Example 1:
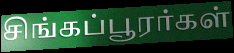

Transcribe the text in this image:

சிங்கப்பூரர்கள்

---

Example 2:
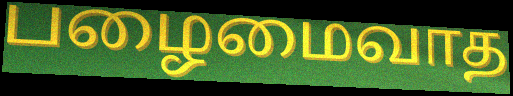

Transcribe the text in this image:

பழைமைவாத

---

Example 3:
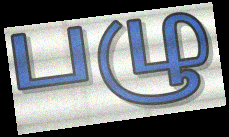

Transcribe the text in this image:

பழு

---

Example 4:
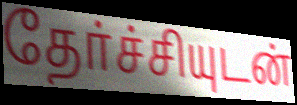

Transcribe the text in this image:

தேர்ச்சியுடன்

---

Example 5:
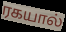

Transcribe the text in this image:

ரகயால்